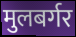
मुलबर्गर